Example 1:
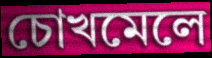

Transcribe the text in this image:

চোখমেলে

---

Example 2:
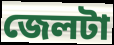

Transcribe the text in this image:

জেলটা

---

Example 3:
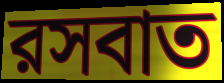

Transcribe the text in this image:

রসবাত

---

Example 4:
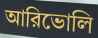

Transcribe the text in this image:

আরিভোলি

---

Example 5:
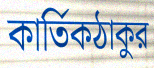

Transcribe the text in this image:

কার্তিকঠাকুর